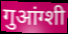
गुआंग्शी